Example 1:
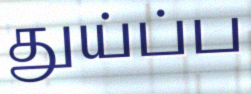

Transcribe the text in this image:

துய்ப்ப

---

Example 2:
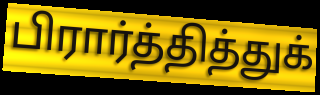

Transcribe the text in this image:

பிரார்த்தித்துக்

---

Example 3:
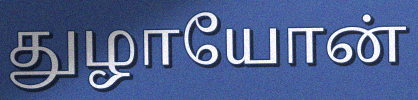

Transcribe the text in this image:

துழாயோன்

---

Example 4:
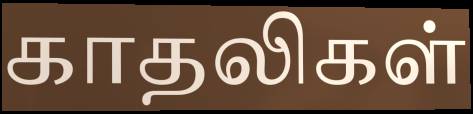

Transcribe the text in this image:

காதலிகள்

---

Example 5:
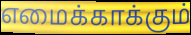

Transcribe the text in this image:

எமைக்காக்கும்